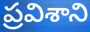
ప్రవిశాని